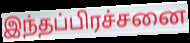
இந்தப்பிரச்சனை